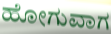
ಹೋಗುವಾಗ